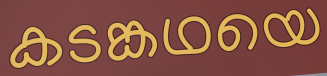
കടങ്കഥയെ